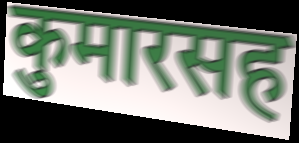
कुमारसह